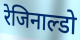
रेजिनाल्डो